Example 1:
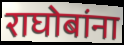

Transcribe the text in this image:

राघोबांना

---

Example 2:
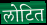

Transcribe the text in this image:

लोटित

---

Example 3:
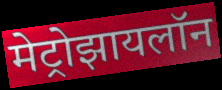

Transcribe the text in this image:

मेट्रोझायलॉन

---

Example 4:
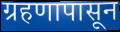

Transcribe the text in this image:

ग्रहणापासून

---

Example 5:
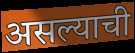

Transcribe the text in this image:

असल्याची